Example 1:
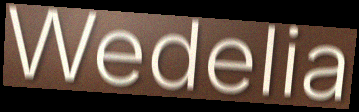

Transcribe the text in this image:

Wedelia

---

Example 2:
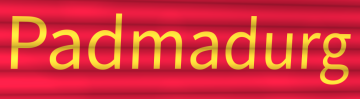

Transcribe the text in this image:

Padmadurg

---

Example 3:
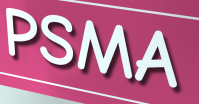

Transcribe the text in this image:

PSMA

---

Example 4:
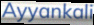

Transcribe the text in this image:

Ayyankali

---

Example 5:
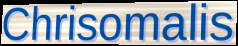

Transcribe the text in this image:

Chrisomalis